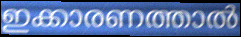
ഇക്കാരണത്താൽ